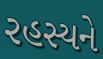
રહસ્યને